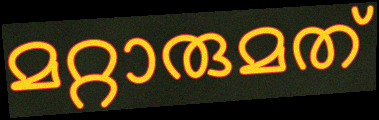
മറ്റാരുമത്